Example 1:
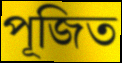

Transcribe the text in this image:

পূজিত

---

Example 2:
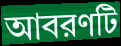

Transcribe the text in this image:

আবরণটি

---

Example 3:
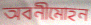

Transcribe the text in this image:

অবনীমোহন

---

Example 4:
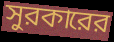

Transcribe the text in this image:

সুরকারের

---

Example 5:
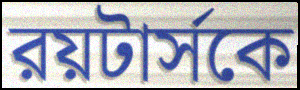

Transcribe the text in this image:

রয়টার্সকে